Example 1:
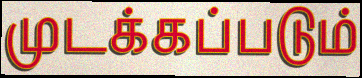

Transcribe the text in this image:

முடக்கப்படும்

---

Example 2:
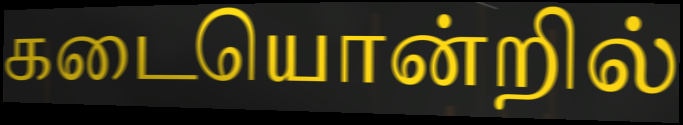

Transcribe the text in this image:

கடையொன்றில்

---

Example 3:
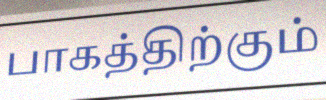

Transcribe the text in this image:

பாகத்திற்கும்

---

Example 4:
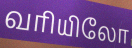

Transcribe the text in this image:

வரியிலோ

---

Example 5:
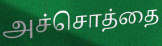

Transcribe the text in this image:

அச்சொத்தை